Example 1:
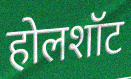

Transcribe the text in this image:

होलशॉट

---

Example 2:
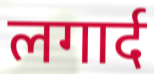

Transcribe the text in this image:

लगार्द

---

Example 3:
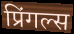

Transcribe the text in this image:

प्रिंगल्स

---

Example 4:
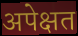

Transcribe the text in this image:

अपेक्षत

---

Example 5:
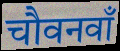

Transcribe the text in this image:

चौवनवाँ